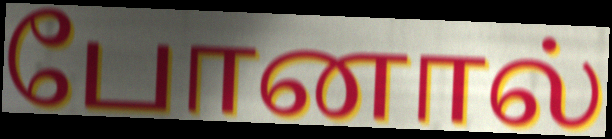
போனால்